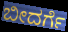
ಬೀದರ್ಗೆ